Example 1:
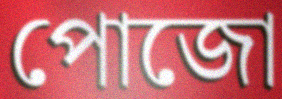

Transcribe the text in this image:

পোজো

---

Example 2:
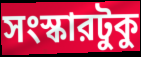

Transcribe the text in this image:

সংস্কারটুকু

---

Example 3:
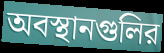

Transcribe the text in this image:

অবস্থানগুলির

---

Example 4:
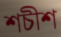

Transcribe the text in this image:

শচীশ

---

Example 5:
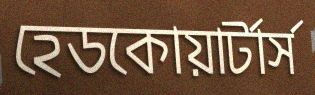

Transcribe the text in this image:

হেডকোয়ার্টার্স